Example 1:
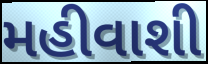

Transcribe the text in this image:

મહીવાશી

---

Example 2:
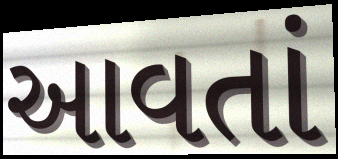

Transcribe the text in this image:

આવતાં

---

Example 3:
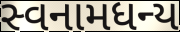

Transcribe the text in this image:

સ્વનામધન્ય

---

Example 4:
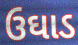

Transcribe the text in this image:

ઉઘાડ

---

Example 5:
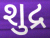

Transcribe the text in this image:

શુદ્ર